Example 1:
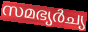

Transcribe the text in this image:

സമഭ്യർച്യ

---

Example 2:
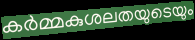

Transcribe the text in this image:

കർമ്മകുശലതയുടെയും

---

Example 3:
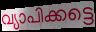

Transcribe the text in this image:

വ്യാപിക്കട്ടെ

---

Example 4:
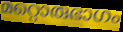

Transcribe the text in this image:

മറ്റൊരുഭാഗം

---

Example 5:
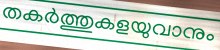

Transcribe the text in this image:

തകർത്തുകളയുവാനും